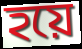
হয়ে